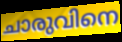
ചാരുവിനെ